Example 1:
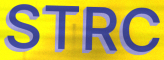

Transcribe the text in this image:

STRC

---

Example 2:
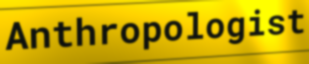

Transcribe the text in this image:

Anthropologist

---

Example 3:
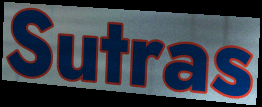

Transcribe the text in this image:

Sutras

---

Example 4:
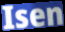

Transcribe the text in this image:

Isen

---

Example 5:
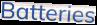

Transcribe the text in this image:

Batteries